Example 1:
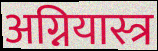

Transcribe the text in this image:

अग्नियास्त्र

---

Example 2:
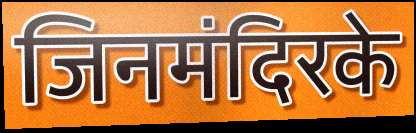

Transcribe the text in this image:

जिनमंदिरके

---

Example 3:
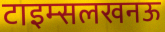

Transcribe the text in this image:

टाइम्सलखनऊ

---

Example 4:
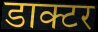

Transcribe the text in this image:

डाक्टर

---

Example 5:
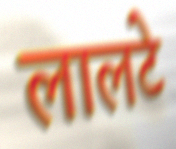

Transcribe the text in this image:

लालटे